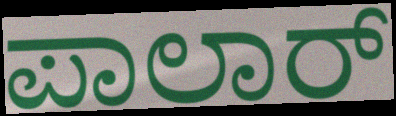
ಪಾಲಾರ್